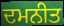
ਦਮਨੀਤ